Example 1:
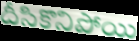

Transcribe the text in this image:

దీసికొనిపోయి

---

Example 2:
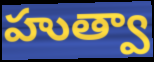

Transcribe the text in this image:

హుత్వా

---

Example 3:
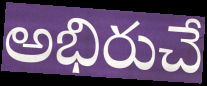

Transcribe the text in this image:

అభిరుచే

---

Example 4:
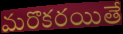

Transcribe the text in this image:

మరొకరయితే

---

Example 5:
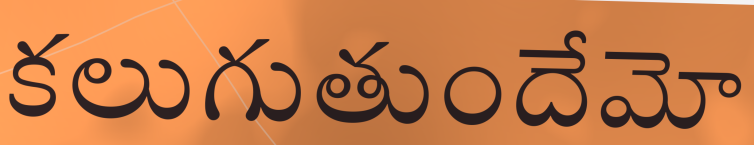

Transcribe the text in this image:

కలుగుతుందేమో